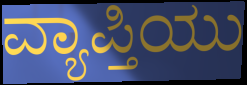
ವ್ಯಾಪ್ತಿಯು